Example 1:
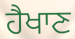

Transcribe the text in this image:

ਹੈਖਾਣ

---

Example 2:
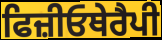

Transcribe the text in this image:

ਫਿਜ਼ੀਓਥੇਰੈਪੀ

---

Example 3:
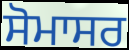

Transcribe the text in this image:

ਸੋਮਾਸਰ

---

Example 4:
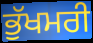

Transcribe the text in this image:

ਭੁੱਖਮਰੀ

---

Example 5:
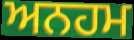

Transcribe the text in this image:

ਅਨਹਮ